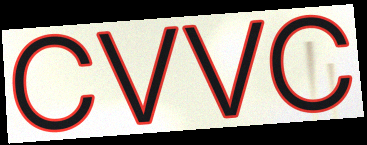
CVVC